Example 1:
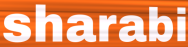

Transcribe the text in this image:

sharabi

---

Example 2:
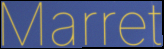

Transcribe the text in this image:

Marret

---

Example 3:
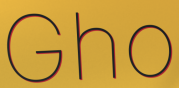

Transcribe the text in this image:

Gho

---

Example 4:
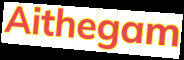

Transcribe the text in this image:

Aithegam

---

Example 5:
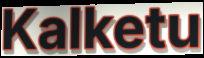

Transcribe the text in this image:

Kalketu